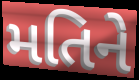
મતિને